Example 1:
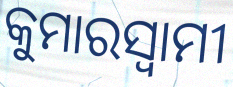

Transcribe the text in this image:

କୁମାରସ୍ୱାମୀ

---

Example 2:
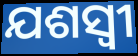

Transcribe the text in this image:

ଯଶସ୍ବୀ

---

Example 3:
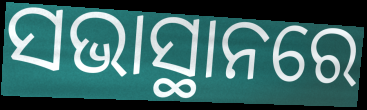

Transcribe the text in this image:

ସଭାସ୍ଥାନରେ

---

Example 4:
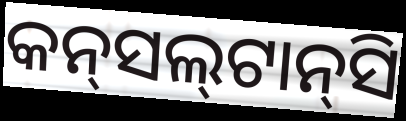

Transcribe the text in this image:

କନ୍‌ସଲ୍‌ଟାନ୍‌ସି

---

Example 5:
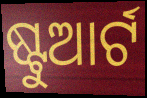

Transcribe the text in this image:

ଷ୍ଟୁଆର୍ଟ